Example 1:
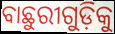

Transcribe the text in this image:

ବାଛୁରୀଗୁଡ଼ିକୁ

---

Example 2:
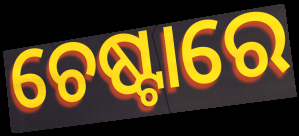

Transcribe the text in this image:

ଚେଷ୍ଟାରେ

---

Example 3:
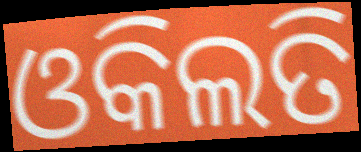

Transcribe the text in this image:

ଓକିଲତି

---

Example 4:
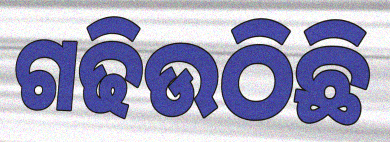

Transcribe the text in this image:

ଗଢିଉଠିଛି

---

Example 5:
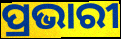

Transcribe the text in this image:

ପ୍ରଭାରୀ